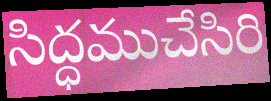
సిద్ధముచేసిరి